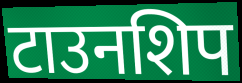
टाउनशिप